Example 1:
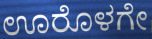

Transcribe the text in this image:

ಊರೊಳಗೇ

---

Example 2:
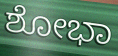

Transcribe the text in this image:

ಶೋಭಾ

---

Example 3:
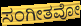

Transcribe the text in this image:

ಸಂಗೀತವೋ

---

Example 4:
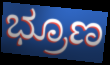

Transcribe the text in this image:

ಭ್ರೂಣ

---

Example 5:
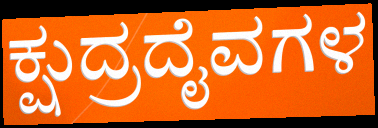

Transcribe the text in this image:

ಕ್ಷುದ್ರದೈವಗಳ